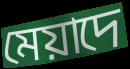
মেয়াদে